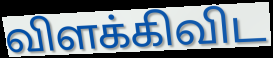
விளக்கிவிட